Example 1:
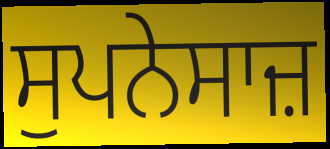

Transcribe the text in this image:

ਸੁਪਨੇਸਾਜ਼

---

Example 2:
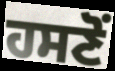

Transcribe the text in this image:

ਹਸਣੋਂ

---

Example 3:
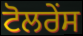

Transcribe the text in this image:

ਟੋਲਰੇਂਸ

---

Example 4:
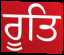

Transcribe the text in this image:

ਰੂਤਿ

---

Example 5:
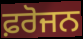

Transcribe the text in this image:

ਫ਼ਰੋਜਨ